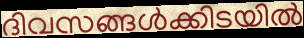
ദിവസങ്ങൾക്കിടയിൽ